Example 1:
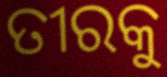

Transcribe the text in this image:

ତୀରକୁ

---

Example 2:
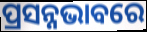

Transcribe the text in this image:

ପ୍ରସନ୍ନଭାବରେ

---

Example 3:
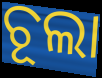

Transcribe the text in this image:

ଚୂଲା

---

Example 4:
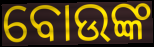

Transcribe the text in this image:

ବୋଉଙ୍କ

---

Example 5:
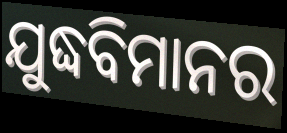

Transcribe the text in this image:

ଯୁଦ୍ଧବିମାନର